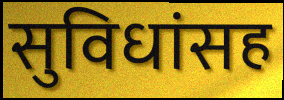
सुविधांसह